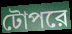
টোপরে